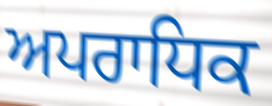
ਅਪਰਾਧਿਕ